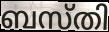
ബസ്തി